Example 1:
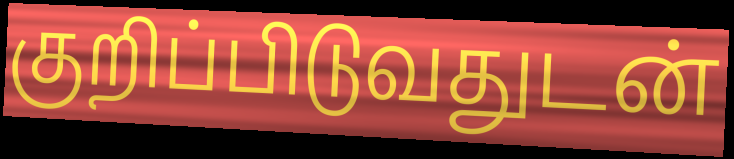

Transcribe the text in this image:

குறிப்பிடுவதுடன்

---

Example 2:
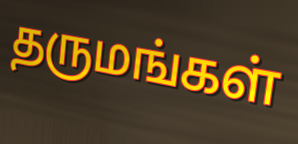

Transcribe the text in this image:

தருமங்கள்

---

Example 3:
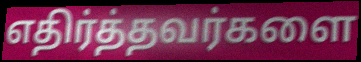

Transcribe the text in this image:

எதிர்த்தவர்களை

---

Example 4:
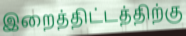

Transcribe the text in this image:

இறைத்திட்டத்திற்கு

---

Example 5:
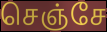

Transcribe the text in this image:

செஞ்சே